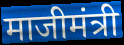
माजीमंत्री